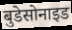
बुडेसोनाइड